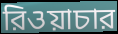
রিওয়াচার